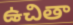
ఉచితా